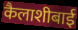
कैलाशीबाई